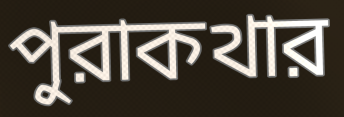
পুরাকথার